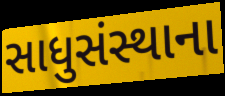
સાધુસંસ્થાના